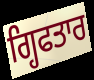
ਗ੍ਹਿਫਤਾਰ